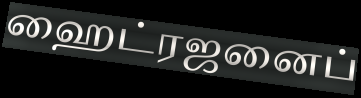
ஹைட்ரஜனைப்